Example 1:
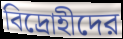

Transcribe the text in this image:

বিদ্রোহীদের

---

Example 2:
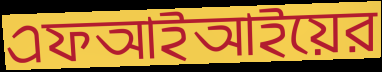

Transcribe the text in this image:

এফআইআইয়ের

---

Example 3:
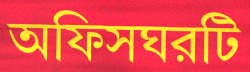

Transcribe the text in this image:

অফিসঘরটি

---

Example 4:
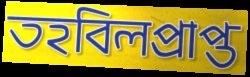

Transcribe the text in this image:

তহবিলপ্রাপ্ত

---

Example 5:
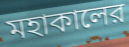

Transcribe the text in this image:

মহাকালের